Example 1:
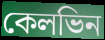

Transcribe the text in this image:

কেলভিন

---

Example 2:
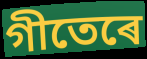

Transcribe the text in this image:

গীতেৰে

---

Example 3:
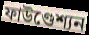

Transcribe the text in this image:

ফাউণ্ডেশ্যন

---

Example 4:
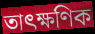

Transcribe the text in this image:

তাৎক্ষণিক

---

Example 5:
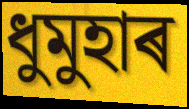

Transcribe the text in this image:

ধুমুহাৰ